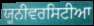
ਯੂਨੀਵਰਸਿਟੀਆ